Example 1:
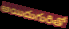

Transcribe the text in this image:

అయిదుగురితో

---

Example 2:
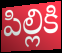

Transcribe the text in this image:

పిల్లికి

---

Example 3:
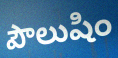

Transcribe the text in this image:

పౌలుషిం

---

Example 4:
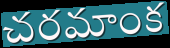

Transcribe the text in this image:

చరమాంక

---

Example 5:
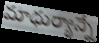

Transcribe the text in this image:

మాధుర్యాన్నే